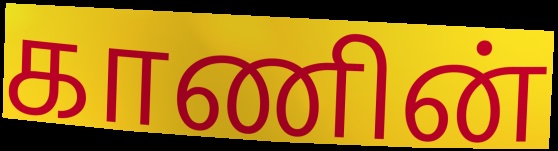
காணின்